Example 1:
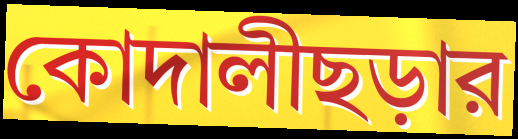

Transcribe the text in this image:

কোদালীছড়ার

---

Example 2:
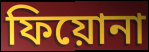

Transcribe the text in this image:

ফিয়োনা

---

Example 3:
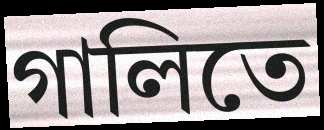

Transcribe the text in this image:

গালিতে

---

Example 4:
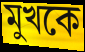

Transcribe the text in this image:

মুখকে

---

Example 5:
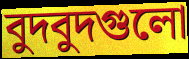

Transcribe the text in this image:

বুদবুদগুলো